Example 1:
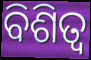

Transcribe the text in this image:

ବିଶିତ୍ଵ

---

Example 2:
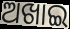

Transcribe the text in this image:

ଅଖାଇ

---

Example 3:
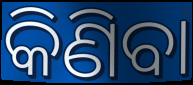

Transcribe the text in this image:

କିଣିବା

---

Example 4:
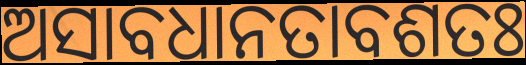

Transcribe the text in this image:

ଅସାବଧାନତାବଶତଃ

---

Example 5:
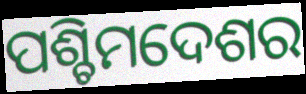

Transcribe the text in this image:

ପଶ୍ଚିମଦେଶର